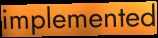
implemented